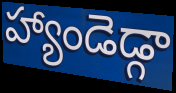
హ్యాండెడ్గా